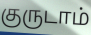
குருடாம்